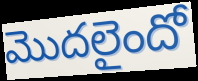
మొదలైందో